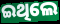
ଇଥିଲେ